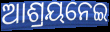
ଆଶ୍ରୟନେଇ